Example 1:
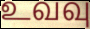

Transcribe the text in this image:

உவவு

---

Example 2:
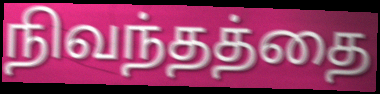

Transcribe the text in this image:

நிவந்தத்தை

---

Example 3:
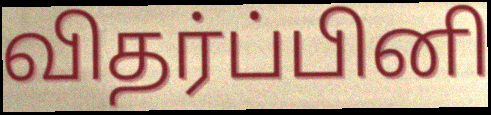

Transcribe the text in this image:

விதர்ப்பினி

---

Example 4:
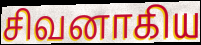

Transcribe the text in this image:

சிவனாகிய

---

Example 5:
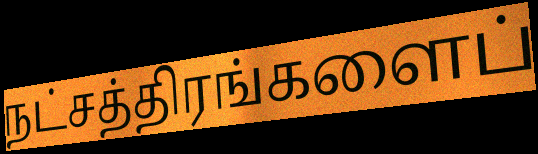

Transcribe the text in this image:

நட்சத்திரங்களைப்